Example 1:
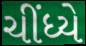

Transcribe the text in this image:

ચીંધ્યે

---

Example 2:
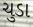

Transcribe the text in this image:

ચુડા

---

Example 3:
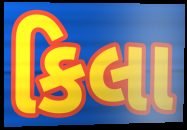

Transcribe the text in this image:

કિલા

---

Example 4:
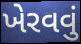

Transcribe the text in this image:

ખેરવવું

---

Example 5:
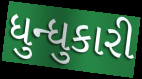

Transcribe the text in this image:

ધુન્ધુકારી